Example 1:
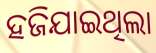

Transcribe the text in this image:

ହଜିଯାଇଥିଲା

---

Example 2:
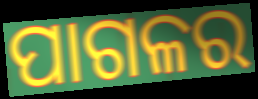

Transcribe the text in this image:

ପାଗଳର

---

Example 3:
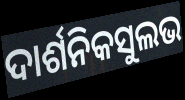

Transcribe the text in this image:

ଦାର୍ଶନିକସୁଲଭ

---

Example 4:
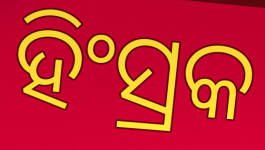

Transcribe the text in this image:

ହିଂସ୍ରକ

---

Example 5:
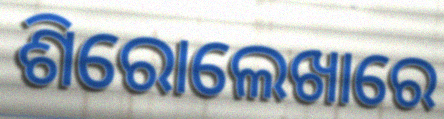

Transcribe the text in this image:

ଶିରୋଲେଖାରେ